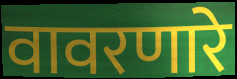
वावरणारे